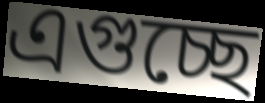
এগুচ্ছে